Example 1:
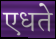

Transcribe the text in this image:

एधते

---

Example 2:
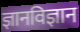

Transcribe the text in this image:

ज्ञानविज्ञान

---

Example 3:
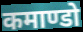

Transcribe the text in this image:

कमाण्डो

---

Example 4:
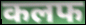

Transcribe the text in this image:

कलफ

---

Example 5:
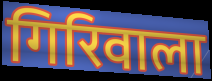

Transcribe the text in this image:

गिरिवाला